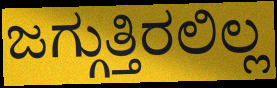
ಜಗ್ಗುತ್ತಿರಲಿಲ್ಲ